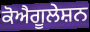
ਕੋਐਗੂਲੇਸ਼ਨ